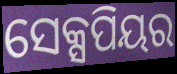
ସେକ୍ସପିୟର